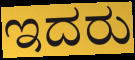
ಇದರು